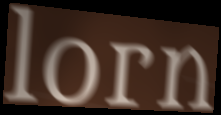
lorn